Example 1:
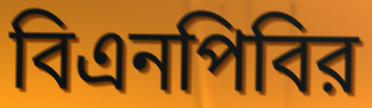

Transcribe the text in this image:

বিএনপিবির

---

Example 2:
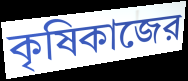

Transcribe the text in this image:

কৃষিকাজের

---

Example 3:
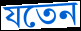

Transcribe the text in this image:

যতেন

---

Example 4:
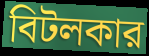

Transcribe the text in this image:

বিটলকার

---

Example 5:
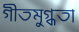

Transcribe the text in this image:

গীতমুগ্ধতা